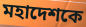
মহাদেশকে